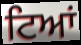
ਟਿਆਂ